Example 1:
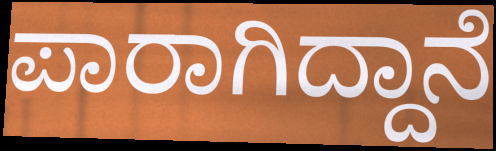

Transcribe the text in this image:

ಪಾರಾಗಿದ್ದಾನೆ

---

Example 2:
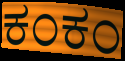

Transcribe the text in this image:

ಕಂಕಂ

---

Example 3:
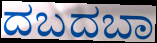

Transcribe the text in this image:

ದಬದಬಾ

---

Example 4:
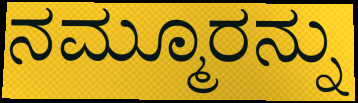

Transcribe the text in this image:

ನಮ್ಮೂರನ್ನು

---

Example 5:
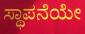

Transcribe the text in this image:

ಸ್ಥಾಪನೆಯೇ